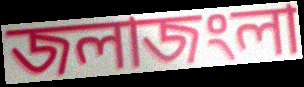
জলাজংলা